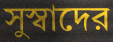
সুস্বাদের